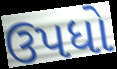
ઉપધો